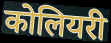
कोलियरी